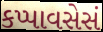
કપ્પાવસેસં